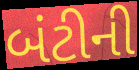
બંટીની